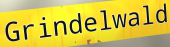
Grindelwald